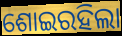
ଶୋଇରହିଲା